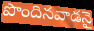
పొందినవాడనై